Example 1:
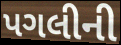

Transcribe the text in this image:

પગલીની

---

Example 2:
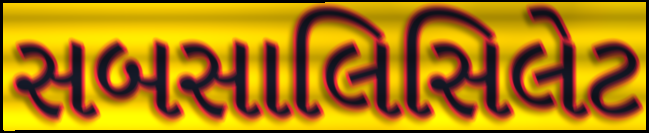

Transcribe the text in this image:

સબસાલિસિલેટ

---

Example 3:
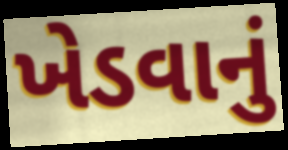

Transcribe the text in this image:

ખેડવાનું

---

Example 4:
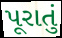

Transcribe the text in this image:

પૂરાતું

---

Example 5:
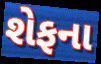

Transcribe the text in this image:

શેફના